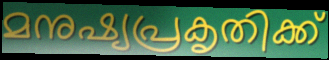
മനുഷ്യപ്രകൃതിക്ക്